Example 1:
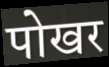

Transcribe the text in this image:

पोखर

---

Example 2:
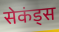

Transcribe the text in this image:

सेकंड्स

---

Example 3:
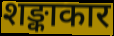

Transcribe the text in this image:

शङ्काकार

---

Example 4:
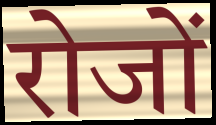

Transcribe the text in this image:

रोजों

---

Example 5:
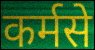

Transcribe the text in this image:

कर्मसे